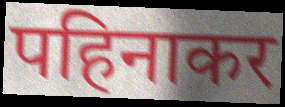
पहिनाकर